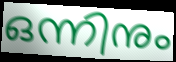
ഒന്നിനും